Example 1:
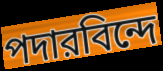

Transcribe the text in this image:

পদারবিন্দে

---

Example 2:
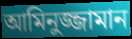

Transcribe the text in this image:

আমিনুজ্জামান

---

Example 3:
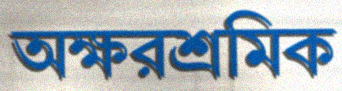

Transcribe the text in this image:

অক্ষরশ্রমিক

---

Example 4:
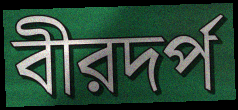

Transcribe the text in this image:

বীরদর্প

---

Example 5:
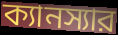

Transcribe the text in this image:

ক্যানস্যার